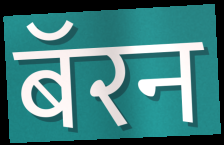
बॅरन